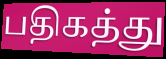
பதிகத்து